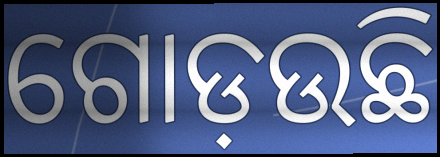
ଗୋଡ଼ଉଛି